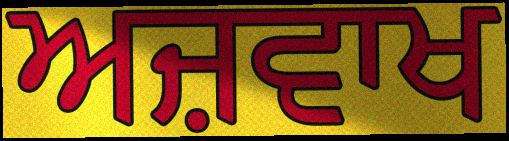
ਅਜ਼ਵਾਖ